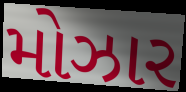
મોઝાર